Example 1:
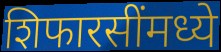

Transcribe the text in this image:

शिफारसींमध्ये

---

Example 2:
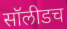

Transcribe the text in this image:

सॉलीडच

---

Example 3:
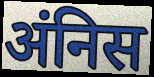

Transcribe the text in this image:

अंनिस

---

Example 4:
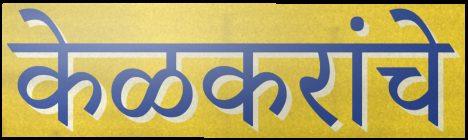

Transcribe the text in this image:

केळकरांचे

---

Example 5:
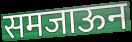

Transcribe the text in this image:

समजाऊन